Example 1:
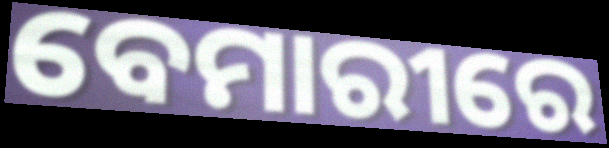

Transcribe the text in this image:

ବେମାରୀରେ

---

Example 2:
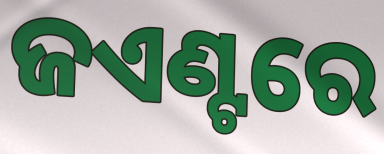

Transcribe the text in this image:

ଜଏଣ୍ଟରେ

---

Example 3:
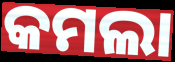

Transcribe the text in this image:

କମଲା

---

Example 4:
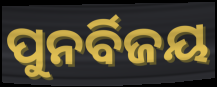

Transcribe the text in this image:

ପୁନର୍ବିଜୟ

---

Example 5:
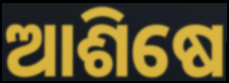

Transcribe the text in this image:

ଆଶିଷେ